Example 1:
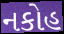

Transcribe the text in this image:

નકોહ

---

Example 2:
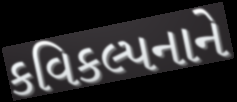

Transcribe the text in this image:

કવિકલ્પનાને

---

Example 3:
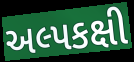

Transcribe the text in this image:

અલ્પકક્ષી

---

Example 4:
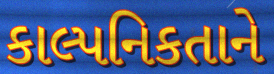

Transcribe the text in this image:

કાલ્પનિકતાને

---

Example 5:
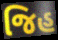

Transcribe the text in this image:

જિહ